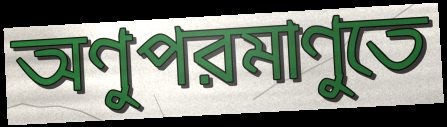
অণুপরমাণুতে